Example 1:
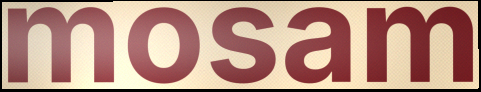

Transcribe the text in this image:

mosam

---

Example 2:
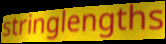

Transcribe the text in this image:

stringlengths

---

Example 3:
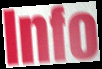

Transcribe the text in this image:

Info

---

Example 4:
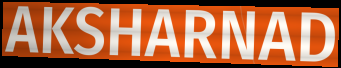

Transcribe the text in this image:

AKSHARNAD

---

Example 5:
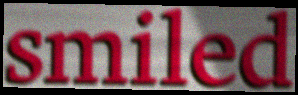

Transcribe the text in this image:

smiled